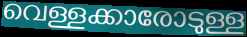
വെള്ളക്കാരോടുള്ള